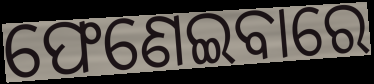
ଫେଣେଇବାରେ